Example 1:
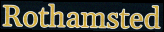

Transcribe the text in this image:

Rothamsted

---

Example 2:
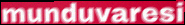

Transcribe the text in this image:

munduvaresi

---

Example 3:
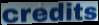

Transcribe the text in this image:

credits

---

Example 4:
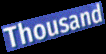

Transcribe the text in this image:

Thousand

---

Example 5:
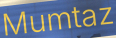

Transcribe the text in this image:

Mumtaz